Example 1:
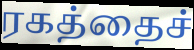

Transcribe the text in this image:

ரகத்தைச்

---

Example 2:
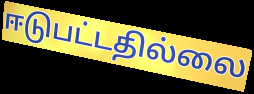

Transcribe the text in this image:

ஈடுபட்டதில்லை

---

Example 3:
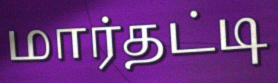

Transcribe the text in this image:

மார்தட்டி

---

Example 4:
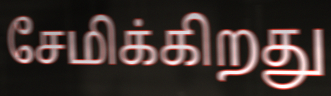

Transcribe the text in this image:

சேமிக்கிறது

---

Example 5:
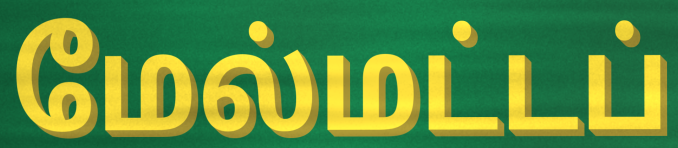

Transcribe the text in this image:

மேல்மட்டப்